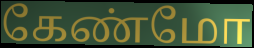
கேண்மோ